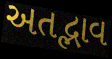
અતદ્ભાવ